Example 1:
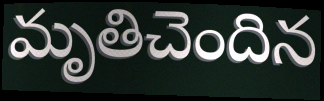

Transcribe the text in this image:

మృతిచెందిన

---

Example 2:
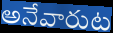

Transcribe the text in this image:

అనేవారుట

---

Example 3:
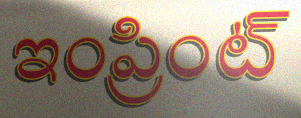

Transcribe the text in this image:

ఇంప్రింట్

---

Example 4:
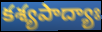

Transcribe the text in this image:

కశ్యపాద్యాః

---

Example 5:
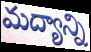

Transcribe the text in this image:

మద్యాన్ని